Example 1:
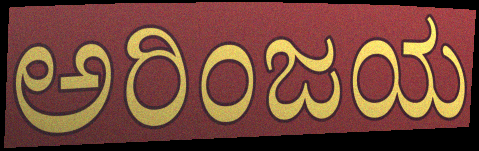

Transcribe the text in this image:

ಅರಿಂಜಯ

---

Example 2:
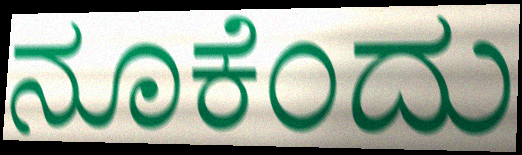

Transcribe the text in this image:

ನೂಕೆಂದು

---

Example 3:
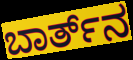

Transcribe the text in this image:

ಬಾರ್ತ್‌ನ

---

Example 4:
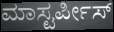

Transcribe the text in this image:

ಮಾಸ್ಟರ್ಪೀಸ್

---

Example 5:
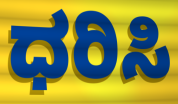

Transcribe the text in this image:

ಧರಿಸಿ